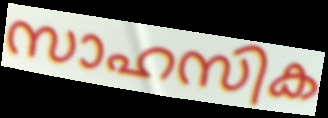
സാഹസിക